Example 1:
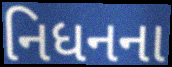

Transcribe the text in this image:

નિધનના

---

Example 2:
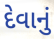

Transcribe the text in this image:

દેવાનું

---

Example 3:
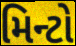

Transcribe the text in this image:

મિન્ટો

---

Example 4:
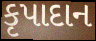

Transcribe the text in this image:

કૃપાદાન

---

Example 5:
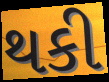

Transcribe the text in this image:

થકી